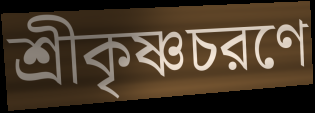
শ্রীকৃষ্ণচরণে